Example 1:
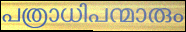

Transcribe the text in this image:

പത്രാധിപന്മാരും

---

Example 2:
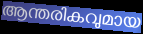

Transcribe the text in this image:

ആന്തരികവുമായ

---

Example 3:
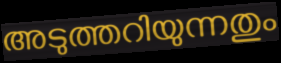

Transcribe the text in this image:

അടുത്തറിയുന്നതും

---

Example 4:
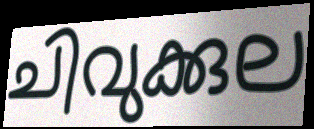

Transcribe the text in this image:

ചിവുക്കുല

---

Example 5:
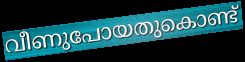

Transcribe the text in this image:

വീണുപോയതുകൊണ്ട്